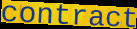
contract